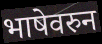
भाषेवरुन